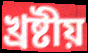
খ্রষ্টীয়